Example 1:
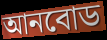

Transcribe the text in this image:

আনবোড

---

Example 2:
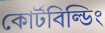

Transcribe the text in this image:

কোর্টবিল্ডিং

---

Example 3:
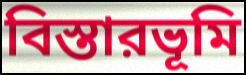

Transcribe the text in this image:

বিস্তারভূমি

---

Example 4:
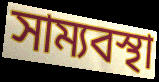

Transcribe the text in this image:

সাম্যবস্থা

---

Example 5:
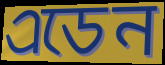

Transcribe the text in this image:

এডেন